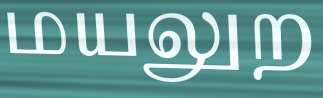
மயலுற